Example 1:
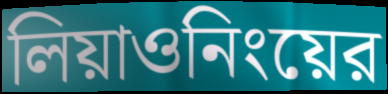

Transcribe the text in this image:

লিয়াওনিংয়ের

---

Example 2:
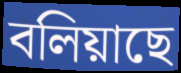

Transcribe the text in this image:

বলিয়াছে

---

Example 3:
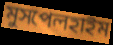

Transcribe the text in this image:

মুসপেলহাইম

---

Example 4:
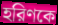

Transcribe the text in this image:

হরিণকে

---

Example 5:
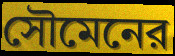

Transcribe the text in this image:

সৌমেনের